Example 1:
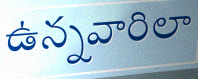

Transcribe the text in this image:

ఉన్నవారిలా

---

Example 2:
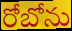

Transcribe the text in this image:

రోబోను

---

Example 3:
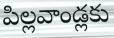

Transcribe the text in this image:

పిల్లవాండ్లకు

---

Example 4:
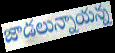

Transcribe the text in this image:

జాడలున్నాయన్న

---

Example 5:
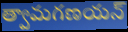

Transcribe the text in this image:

త్వామగణయన్